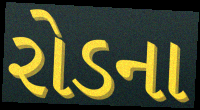
રોડના